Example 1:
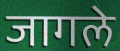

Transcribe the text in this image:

जागले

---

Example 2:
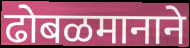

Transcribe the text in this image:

ढोबळमानाने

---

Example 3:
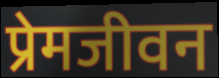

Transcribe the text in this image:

प्रेमजीवन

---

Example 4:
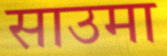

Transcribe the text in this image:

साउमा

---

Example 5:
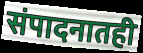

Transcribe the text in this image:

संपादनातही